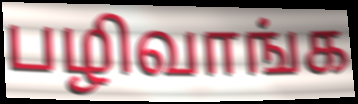
பழிவாங்க